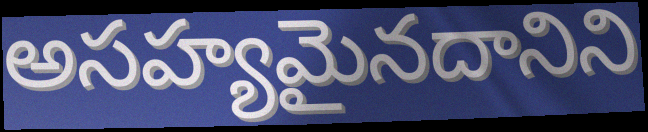
అసహ్యమైనదానిని